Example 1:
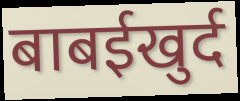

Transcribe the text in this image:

बाबईखुर्द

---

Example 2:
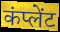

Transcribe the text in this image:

कंप्लेंट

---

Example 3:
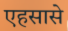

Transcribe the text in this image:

एहसासे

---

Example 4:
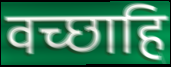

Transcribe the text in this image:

वच्छाहि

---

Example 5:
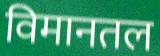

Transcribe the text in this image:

विमानतल